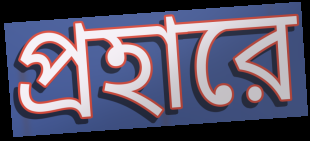
প্রহারে